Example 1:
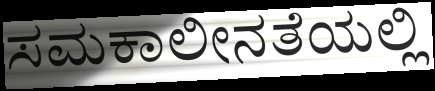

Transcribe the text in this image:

ಸಮಕಾಲೀನತೆಯಲ್ಲಿ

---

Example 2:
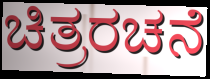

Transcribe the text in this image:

ಚಿತ್ರರಚನೆ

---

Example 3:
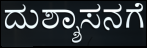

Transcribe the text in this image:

ದುಶ್ಶಾಸನಗೆ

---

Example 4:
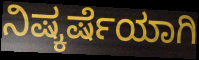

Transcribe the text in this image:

ನಿಷ್ಕರ್ಷೆಯಾಗಿ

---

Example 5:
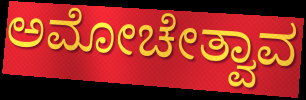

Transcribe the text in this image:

ಅಮೋಚೇತ್ವಾವ